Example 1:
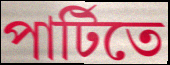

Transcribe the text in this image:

পার্টিতে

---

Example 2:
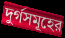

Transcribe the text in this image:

দুর্গসমূহের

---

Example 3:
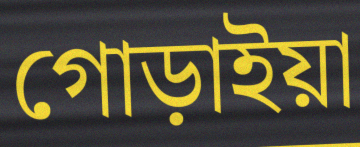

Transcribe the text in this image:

গোড়াইয়া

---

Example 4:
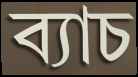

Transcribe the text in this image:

ব্যাচ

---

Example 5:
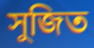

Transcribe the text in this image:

সুজিত